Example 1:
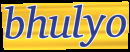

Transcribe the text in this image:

bhulyo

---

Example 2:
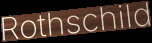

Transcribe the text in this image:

Rothschild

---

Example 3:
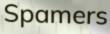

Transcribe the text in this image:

Spamers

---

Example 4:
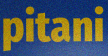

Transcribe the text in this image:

pitani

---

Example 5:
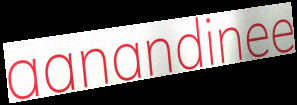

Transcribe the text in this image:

aanandinee